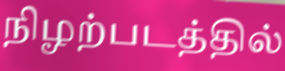
நிழற்படத்தில்